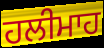
ਹਲੀਮਾਹ